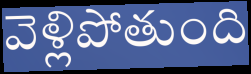
వెళ్లిపోతుంది